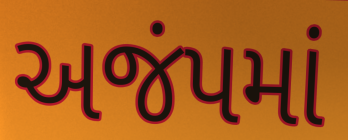
અજંપમાં